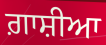
ਗ਼ਾਸ਼ੀਆ